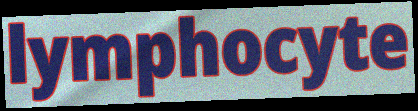
lymphocyte